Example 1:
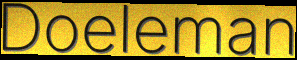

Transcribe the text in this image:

Doeleman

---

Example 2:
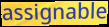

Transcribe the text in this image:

assignable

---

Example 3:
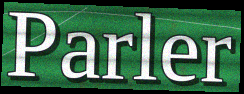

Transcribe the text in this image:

Parler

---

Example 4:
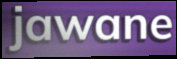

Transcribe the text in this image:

jawane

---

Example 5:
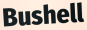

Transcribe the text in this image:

Bushell